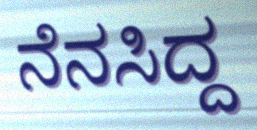
ನೆನಸಿದ್ದ